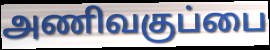
அணிவகுப்பை